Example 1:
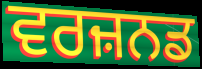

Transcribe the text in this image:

ਵਰਜ਼ਨਡ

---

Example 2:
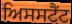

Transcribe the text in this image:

ਅਿਸਸਟੈਂਟ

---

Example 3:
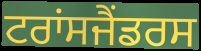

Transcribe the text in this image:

ਟਰਾਂਸਜੈਂਡਰਸ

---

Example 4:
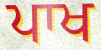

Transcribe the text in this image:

ਪਾਖ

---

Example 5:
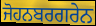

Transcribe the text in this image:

ਜੋਹਨਬਰਗਰੇਨ